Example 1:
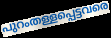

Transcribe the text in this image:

പുറംതള്ളപ്പെട്ടവരെ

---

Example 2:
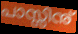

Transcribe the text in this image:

പാസ്സിനു്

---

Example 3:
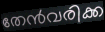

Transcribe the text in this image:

തേൻവരിക്ക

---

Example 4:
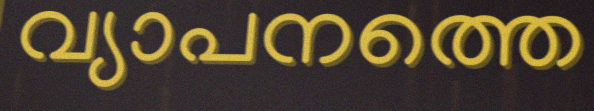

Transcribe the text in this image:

വ്യാപനത്തെ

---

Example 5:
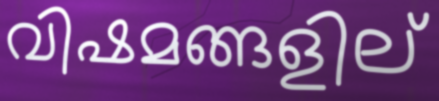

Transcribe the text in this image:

വിഷമങ്ങളില്